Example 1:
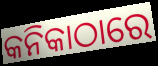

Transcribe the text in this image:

କନିକାଠାରେ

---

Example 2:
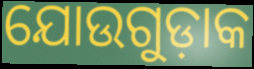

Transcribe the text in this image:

ଯୋଉଗୁଡ଼ାକ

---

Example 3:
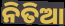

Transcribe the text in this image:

ନିତିଆ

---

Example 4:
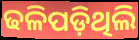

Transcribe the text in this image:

ଢଳିପଡ଼ିଥିଲି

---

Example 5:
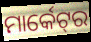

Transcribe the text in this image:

ମାର୍କେଟ୍‌ର